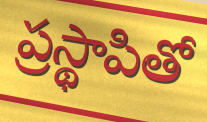
ప్రస్థాపితో